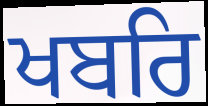
ਖਬਰਿ